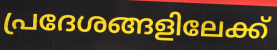
പ്രദേശങ്ങളിലേക്ക്